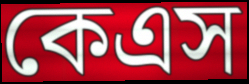
কেএস